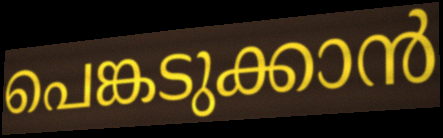
പെങ്കടുക്കാൻ